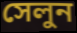
সেলুন